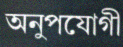
অনুপযোগী